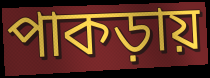
পাকড়ায়